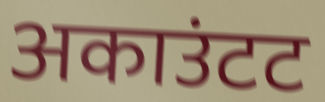
अकाउंटट